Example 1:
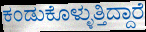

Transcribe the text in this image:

ಕಂಡುಕೊಳ್ಳುತ್ತಿದ್ದಾರೆ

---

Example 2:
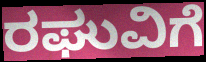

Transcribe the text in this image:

ರಘುವಿಗೆ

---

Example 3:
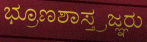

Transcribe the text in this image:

ಭ್ರೂಣಶಾಸ್ತ್ರಜ್ಞರು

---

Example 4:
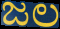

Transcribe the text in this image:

ಜಲ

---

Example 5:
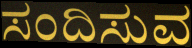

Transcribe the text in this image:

ಸಂದಿಸುವ